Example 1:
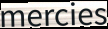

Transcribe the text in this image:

mercies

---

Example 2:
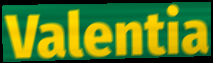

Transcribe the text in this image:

Valentia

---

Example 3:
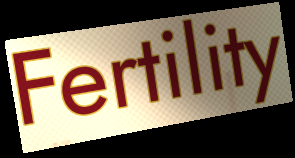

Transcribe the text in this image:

Fertility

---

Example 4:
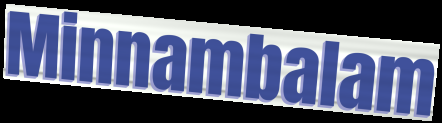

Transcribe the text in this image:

Minnambalam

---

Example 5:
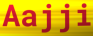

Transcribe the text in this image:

Aajji